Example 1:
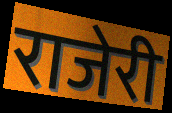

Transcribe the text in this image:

राजेरी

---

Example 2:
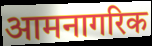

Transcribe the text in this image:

आमनागरिक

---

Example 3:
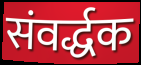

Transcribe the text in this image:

संवर्द्धक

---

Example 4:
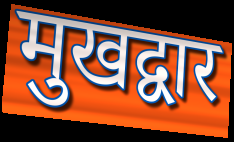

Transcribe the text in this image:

मुखद्वार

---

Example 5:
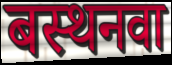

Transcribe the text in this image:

बस्थनवा